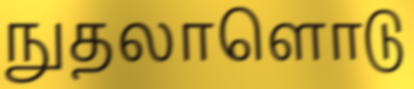
நுதலாளொடு